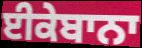
ਈਕੇਬਾਨਾ